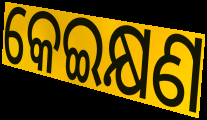
କେଇକ୍ଷଣ